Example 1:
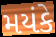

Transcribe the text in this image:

મયંકે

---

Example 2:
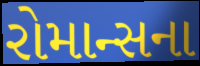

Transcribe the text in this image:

રોમાન્સના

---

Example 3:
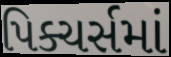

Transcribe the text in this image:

પિક્ચર્સમાં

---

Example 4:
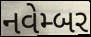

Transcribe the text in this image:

નવેમ્બર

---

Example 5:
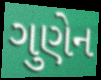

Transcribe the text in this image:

ગુણેન